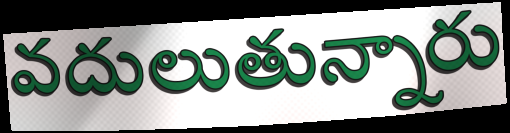
వదులుతున్నారు